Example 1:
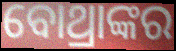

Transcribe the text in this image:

ବୋଥ୍ରାଙ୍କର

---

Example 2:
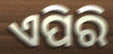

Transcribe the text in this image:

ଏପିରି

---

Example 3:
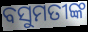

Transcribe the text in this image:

ବସୁମତୀଙ୍କ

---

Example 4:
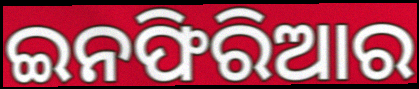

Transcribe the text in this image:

ଇନଫିରିଆର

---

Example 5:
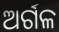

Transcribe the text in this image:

ଅର୍ଗଳ